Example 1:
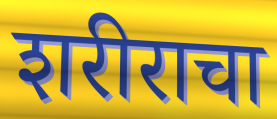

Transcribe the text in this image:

शरीराचा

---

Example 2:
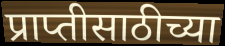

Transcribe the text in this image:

प्राप्तीसाठीच्या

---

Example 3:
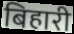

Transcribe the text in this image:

बिहारी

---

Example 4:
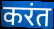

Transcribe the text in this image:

करंत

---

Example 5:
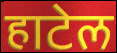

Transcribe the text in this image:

हाटेल